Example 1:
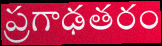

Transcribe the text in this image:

ప్రగాఢతరం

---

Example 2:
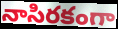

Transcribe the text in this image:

నాసిరకంగా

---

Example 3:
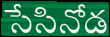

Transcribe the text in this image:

సేసినోడ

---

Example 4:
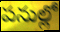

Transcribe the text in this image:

పనుల్లో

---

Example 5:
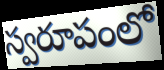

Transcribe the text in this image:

స్వరూపంలో